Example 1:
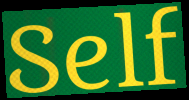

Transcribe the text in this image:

Self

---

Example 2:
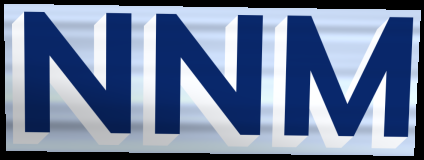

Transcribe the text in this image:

NNM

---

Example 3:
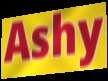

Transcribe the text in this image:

Ashy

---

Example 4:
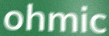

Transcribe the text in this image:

ohmic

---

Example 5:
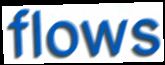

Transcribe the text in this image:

flows